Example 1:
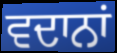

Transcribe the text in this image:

ਵਦਾਨਾਂ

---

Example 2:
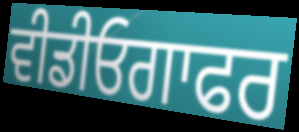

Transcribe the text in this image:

ਵੀਡੀਓਗਾਫਰ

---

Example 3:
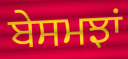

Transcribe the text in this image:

ਬੇਸਮਝਾਂ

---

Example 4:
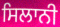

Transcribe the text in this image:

ਸਿਲਾਨੀ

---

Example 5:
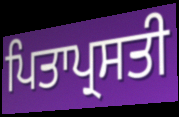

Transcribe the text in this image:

ਪਿਤਾਪ੍ਰਸਤੀ